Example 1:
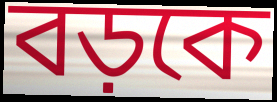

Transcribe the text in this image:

বড়কে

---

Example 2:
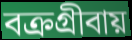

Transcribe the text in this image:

বক্রগ্রীবায়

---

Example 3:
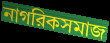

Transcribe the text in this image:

নাগরিকসমাজ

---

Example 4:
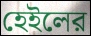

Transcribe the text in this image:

হেইলের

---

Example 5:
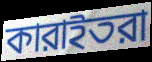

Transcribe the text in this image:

কারাইতরা